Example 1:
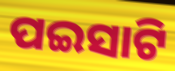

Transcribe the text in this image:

ପଇସାଟି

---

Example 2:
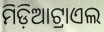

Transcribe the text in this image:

ମିଡ଼ିଆଟ୍ରାଏଲ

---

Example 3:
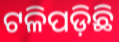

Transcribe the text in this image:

ଟଳିପଡ଼ିଛି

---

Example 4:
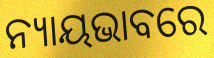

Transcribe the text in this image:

ନ୍ୟାୟଭାବରେ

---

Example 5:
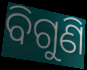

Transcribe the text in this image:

ବିଗୁଣି